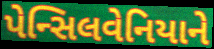
પેન્સિલવેનિયાને